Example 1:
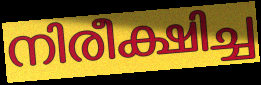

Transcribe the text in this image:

നിരീക്ഷിച്ച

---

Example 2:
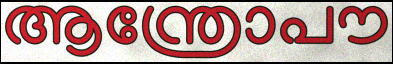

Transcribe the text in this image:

ആന്ത്രോപൗ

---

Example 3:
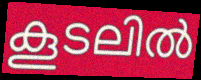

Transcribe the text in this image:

കൂടലിൽ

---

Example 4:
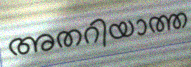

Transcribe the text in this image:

അതറിയാത്ത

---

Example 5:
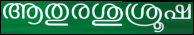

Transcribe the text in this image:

ആതുരശുശ്രൂഷ